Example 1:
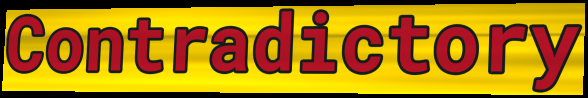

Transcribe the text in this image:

Contradictory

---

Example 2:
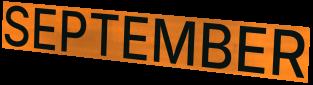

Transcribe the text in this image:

SEPTEMBER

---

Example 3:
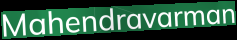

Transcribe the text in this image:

Mahendravarman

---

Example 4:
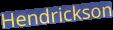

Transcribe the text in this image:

Hendrickson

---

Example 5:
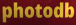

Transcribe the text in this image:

photodb